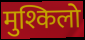
मुश्किलो